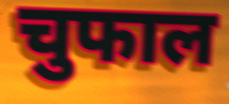
चुफाल